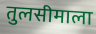
तुलसीमाला